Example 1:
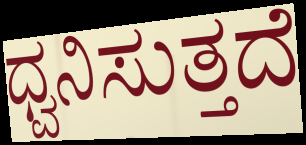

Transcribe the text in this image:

ಧ್ವನಿಸುತ್ತದೆ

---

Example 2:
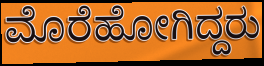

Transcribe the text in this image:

ಮೊರೆಹೋಗಿದ್ದರು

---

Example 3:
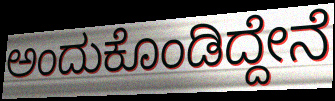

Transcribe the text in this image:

ಅಂದುಕೊಂಡಿದ್ದೇನೆ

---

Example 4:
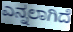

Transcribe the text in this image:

ಎನ್ನಲಾಗಿದೆ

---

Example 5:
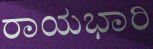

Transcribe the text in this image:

ರಾಯಭಾರಿ